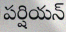
పర్షియన్